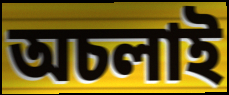
অচলাই